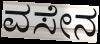
ವಸೇನ